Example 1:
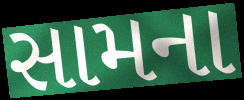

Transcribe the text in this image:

સામના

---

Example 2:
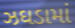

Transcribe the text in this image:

ઝઘડામાં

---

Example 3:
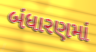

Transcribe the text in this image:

બંધારણમાં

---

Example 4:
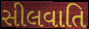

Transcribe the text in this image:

સીલવાતિ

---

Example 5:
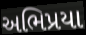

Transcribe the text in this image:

અભિપ્રયા